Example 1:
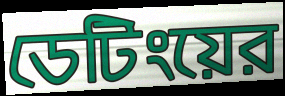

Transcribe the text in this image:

ডেটিংয়ের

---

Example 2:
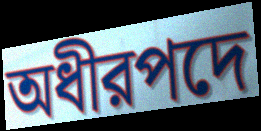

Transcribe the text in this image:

অধীরপদে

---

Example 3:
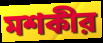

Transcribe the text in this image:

মশকীর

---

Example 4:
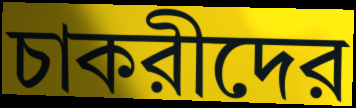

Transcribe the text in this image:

চাকরীদের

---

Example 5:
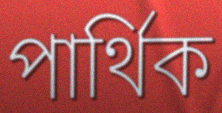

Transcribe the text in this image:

পার্থিক